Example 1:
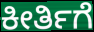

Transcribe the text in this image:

ಕೀರ್ತಿಗೆ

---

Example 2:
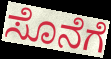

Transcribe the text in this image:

ಸೊನೆಗೆ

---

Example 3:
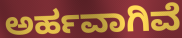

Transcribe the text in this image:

ಅರ್ಹವಾಗಿವೆ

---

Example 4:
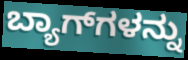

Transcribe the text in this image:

ಬ್ಯಾಗ್‍ಗಳನ್ನು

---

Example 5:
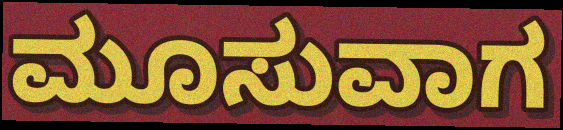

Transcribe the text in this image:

ಮೂಸುವಾಗ